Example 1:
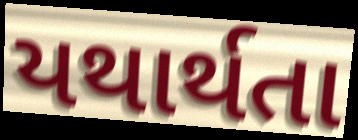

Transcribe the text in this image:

યથાર્થતા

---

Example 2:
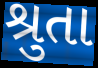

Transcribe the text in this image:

શ્રુતા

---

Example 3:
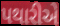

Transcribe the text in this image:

પથારીએ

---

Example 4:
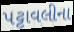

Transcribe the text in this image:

પટ્ટાવલીના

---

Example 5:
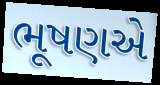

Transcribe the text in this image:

ભૂષણએ